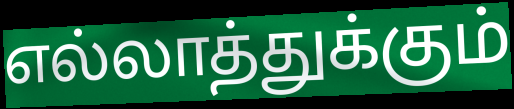
எல்லாத்துக்கும்